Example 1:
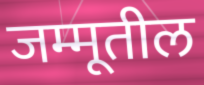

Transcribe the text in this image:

जम्मूतील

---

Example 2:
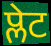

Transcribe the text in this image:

प्लेट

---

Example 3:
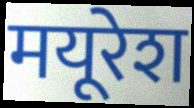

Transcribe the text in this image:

मयूरेश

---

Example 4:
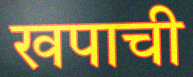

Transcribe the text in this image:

खपाची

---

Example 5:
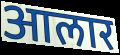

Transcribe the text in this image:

आलार